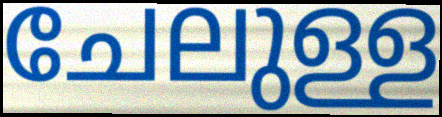
ചേലുള്ള